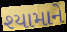
શ્યામાને